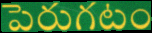
పెరుగటం